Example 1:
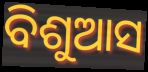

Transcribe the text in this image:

ବିଶୁଆସ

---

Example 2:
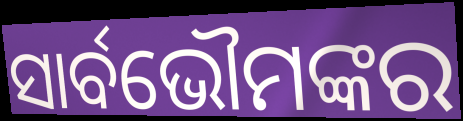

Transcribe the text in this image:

ସାର୍ବଭୌମଙ୍କର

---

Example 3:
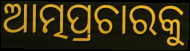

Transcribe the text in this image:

ଆତ୍ମପ୍ରଚାରକୁ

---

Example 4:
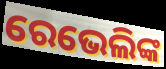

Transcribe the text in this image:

ରେଭେଲିଙ୍କ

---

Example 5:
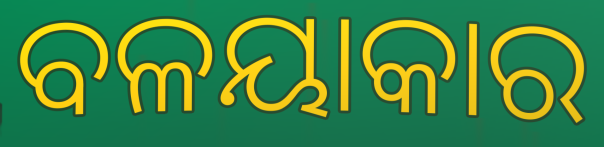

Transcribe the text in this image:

ବଳୟାକାର